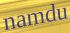
namdu